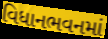
વિધાનભવનમાં